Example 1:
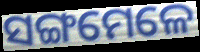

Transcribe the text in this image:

ସଙ୍ଗମେଳେ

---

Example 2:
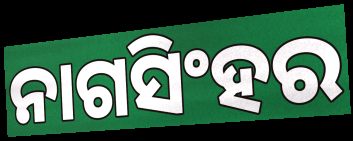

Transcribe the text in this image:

ନାଗସିଂହର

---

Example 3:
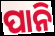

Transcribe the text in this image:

ପାନି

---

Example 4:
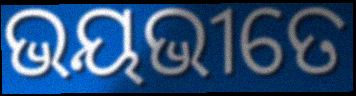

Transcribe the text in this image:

ଭୟଭୀତେ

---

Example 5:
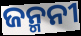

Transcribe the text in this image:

ଜନ୍ମନୀ